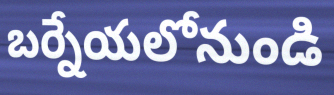
బర్నేయలోనుండి